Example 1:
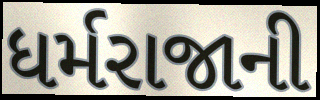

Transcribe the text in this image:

ધર્મરાજાની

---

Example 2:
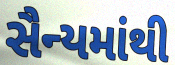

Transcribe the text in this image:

સૈન્યમાંથી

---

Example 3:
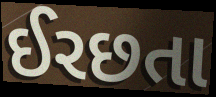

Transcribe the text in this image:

ઈરછતા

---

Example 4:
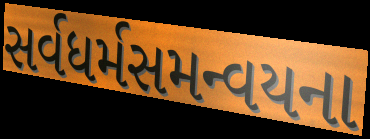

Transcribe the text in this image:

સર્વધર્મસમન્વયના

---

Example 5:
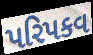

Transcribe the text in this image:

પરિપકવ